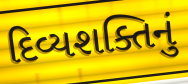
દિવ્યશક્તિનું